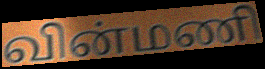
வின்மணி